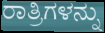
ರಾತ್ರಿಗಳನ್ನು